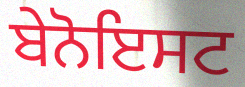
ਬੇਨੋਇਸਟ